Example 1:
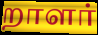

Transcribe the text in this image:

றாளர்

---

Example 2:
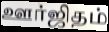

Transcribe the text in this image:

ஊர்ஜிதம்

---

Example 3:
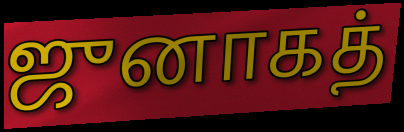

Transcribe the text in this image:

ஜுனாகத்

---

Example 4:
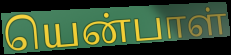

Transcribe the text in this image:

யென்பாள்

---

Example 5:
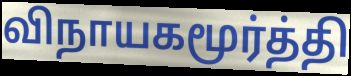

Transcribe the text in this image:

விநாயகமூர்த்தி